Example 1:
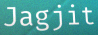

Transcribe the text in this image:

Jagjit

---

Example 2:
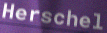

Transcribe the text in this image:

Herschel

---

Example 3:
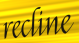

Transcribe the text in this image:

recline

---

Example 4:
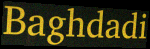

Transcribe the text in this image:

Baghdadi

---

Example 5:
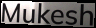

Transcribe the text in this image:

Mukesh